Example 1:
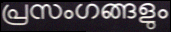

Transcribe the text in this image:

പ്രസംഗങ്ങളും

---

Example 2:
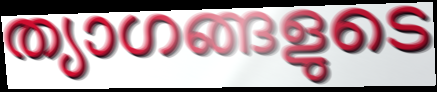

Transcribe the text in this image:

ത്യാഗങ്ങളുടെ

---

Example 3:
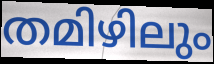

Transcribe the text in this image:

തമിഴിലും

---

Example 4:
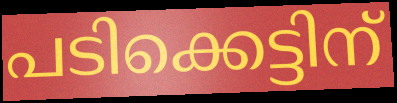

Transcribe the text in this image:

പടിക്കെട്ടിന്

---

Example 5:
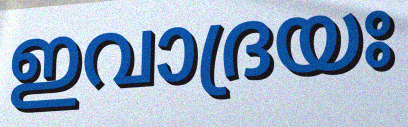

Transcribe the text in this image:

ഇവാദ്രയഃ